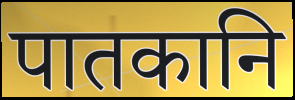
पातकानि